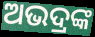
ଅଭଦ୍ରଙ୍କ